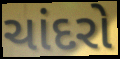
ચાંદરો